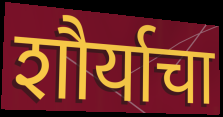
शौर्याचा